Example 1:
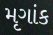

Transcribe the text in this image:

મૃગાંક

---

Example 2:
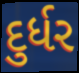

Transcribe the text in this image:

દુર્ધર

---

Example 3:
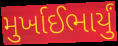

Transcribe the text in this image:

મુર્ખાઈભાર્યું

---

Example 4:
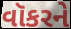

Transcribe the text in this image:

વૉકરને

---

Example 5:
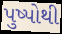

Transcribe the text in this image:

પુષ્પોથી